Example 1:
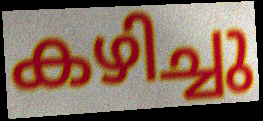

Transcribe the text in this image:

കഴിച്ചു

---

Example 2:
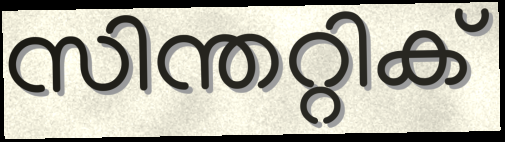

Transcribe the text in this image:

സിന്തറ്റിക്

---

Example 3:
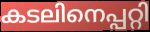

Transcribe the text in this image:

കടലിനെപ്പറ്റി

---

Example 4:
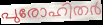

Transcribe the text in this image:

പുരോഹിതർ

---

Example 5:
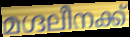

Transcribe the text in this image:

മഗ്ദലീനക്ക്